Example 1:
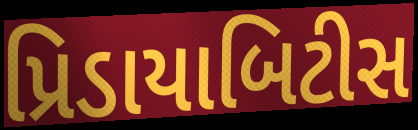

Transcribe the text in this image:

પ્રિડાયાબિટીસ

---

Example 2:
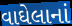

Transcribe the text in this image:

વાઘેલાનાં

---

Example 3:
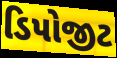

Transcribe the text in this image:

ડિપોજીટ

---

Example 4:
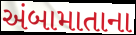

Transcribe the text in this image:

અંબામાતાના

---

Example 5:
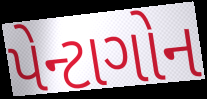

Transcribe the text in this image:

પેન્ટાગોન